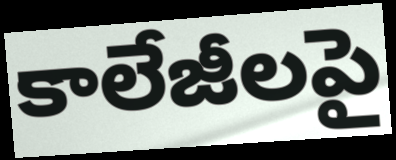
కాలేజీలపై